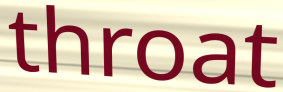
throat